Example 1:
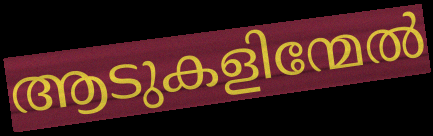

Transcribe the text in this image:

ആടുകളിന്മേൽ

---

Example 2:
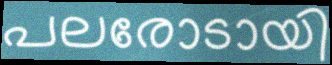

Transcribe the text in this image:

പലരോടായി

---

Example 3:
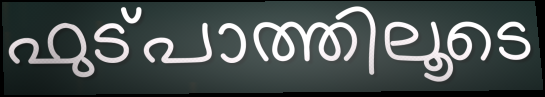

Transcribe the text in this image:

ഫുട്പാത്തിലൂടെ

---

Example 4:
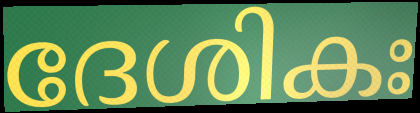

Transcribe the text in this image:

ദേശികഃ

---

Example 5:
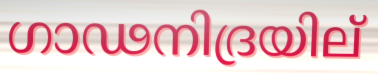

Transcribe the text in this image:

ഗാഢനിദ്രയില്